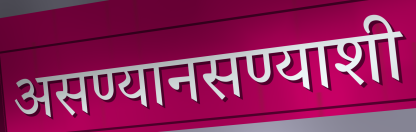
असण्यानसण्याशी